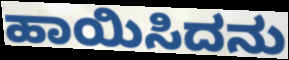
ಹಾಯಿಸಿದನು